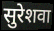
सुरेशवा